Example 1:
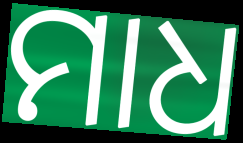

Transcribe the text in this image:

ମାଧ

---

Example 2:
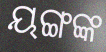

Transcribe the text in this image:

ୟଙ୍ଗଙ୍କ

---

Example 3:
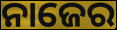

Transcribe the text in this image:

ନାଜେର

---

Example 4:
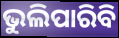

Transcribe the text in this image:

ଭୁଲିପାରିବି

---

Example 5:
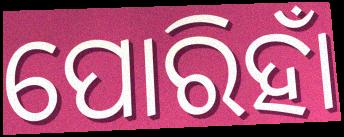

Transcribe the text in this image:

ପୋରିହାଁ